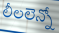
లీలలెన్నో